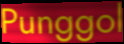
Punggol